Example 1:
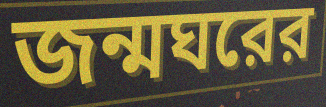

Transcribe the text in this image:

জন্মঘরের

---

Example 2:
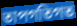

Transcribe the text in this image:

তাপগতিগত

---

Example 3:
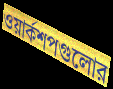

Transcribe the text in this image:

ওয়ার্কশপগুলোর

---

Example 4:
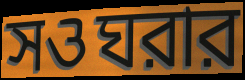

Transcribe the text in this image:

সওঘরার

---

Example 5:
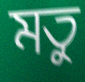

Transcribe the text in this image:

মতু